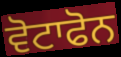
ਵੋਟਾਫੋਨ